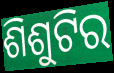
ଶିଶୁଟିର